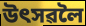
উৎসৱলৈ